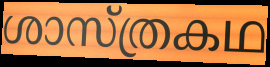
ശാസ്ത്രകഥ